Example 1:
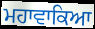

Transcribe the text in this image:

ਮਹਾਵਾਕਿਆ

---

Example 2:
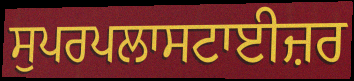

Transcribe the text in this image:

ਸੁਪਰਪਲਾਸਟਾਈਜ਼ਰ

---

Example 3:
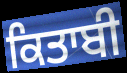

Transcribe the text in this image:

ਕਿਤਾਬੀ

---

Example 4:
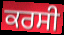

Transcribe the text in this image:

ਕਰਸੀ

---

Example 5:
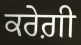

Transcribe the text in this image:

ਕਰੇਗ਼ੀ